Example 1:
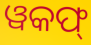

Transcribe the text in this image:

ୱକଫ୍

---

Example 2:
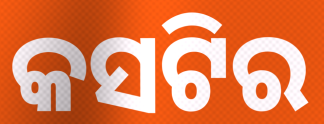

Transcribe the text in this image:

କସଟିର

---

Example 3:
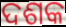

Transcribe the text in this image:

ଦଶକ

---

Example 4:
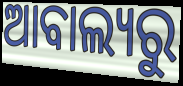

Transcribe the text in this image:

ଆବାଲ୍ୟରୁ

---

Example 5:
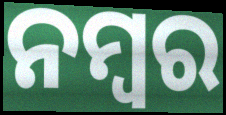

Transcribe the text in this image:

ନମ୍ବର